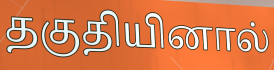
தகுதியினால்